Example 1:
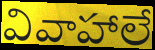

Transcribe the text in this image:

వివాహాలే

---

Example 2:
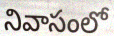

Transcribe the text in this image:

నివాసంలో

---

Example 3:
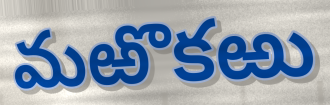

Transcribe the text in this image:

మఱొకఱు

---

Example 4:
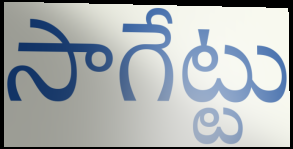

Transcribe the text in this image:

సాగేట్టు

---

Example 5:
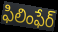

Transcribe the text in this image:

ఫిలింఫేర్